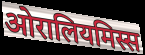
ओरालियमिस्स